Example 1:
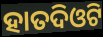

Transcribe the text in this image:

ହାତଦିଓଟି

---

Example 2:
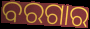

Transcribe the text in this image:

ବରଗାର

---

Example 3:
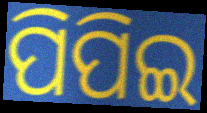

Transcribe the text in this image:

ପିପିଇ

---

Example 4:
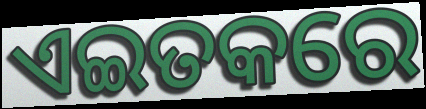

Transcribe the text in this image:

ଏଇତକରେ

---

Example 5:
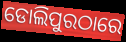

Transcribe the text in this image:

ଡୋଲିପୁରଠାରେ